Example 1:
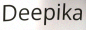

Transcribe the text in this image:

Deepika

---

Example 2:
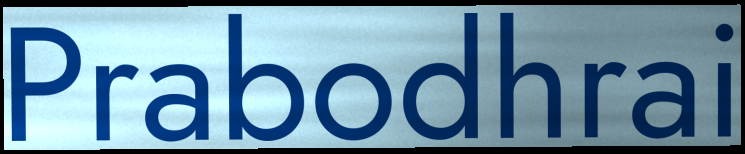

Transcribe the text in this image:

Prabodhrai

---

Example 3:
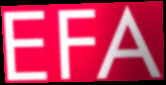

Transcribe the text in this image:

EFA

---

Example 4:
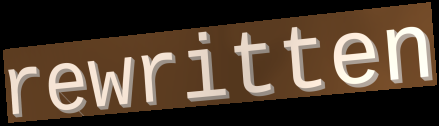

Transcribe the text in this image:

rewritten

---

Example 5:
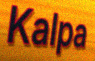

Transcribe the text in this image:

Kalpa